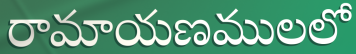
రామాయణములలో